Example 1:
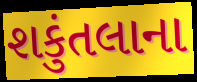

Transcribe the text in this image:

શકુંતલાના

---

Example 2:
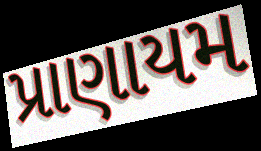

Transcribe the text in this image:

પ્રાણાયમ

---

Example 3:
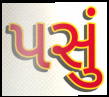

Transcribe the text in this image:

પસું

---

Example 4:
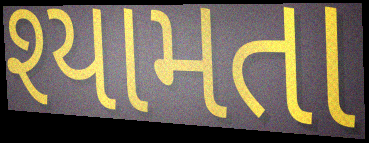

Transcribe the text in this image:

શ્યામતા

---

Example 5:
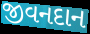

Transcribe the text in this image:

જીવનદાન